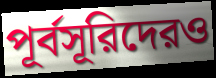
পূর্বসূরিদেরও